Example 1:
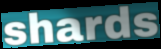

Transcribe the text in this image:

shards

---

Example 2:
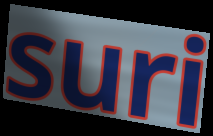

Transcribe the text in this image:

suri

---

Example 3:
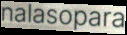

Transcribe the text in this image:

nalasopara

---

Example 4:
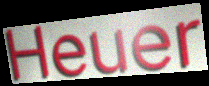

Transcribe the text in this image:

Heuer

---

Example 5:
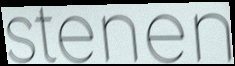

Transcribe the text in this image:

stenen